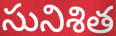
సునిశిత